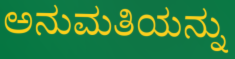
ಅನುಮತಿಯನ್ನು